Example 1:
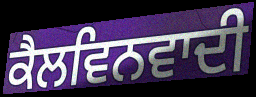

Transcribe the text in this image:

ਕੈਲਵਿਨਵਾਦੀ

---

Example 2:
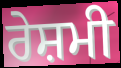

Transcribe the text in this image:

ਰੇਸ਼ਮੀ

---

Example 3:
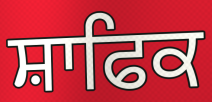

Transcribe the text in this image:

ਸ਼ਾਫਿਕ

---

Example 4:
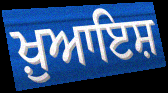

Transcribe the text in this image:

ਖ਼ੁਆਇਸ਼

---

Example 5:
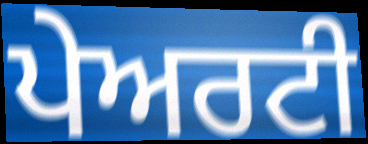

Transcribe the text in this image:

ਪੇਅਰਟੀ